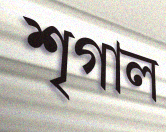
শৃগাল